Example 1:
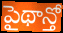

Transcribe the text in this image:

పైథాన్తో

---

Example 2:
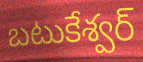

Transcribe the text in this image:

బటుకేశ్వర్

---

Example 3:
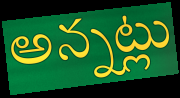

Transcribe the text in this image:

అన్నట్లు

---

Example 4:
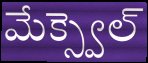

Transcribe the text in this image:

మేక్స్వెల్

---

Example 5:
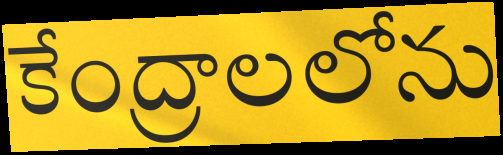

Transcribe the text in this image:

కేంద్రాలలోను